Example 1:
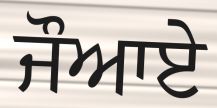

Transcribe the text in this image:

ਜੌਆਏ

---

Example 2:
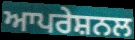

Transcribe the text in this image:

ਆਪਰੇਸ਼ਨਲ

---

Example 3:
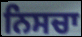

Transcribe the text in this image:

ਨਿਸਚਾ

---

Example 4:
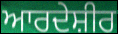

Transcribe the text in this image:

ਆਰਦੇਸ਼ੀਰ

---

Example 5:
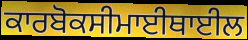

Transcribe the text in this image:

ਕਾਰਬੋਕਸੀਮਾਈਥਾਈਲ